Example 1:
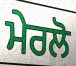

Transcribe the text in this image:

ਮੇਰਲੋ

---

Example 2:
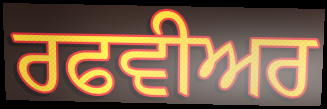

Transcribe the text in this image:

ਰਫਵੀਅਰ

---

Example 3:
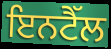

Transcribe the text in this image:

ਇਨਟੈੱਲ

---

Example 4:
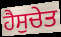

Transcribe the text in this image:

ਹੈਸੁਚੇਤ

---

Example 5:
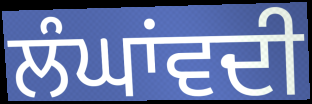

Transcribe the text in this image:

ਲੰਘਾਂਵਦੀ